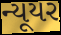
ન્યૂયર